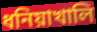
ধনিয়াখালি